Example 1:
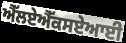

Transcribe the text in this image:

ਐੱਲਏਐੱਕਸਏਆਈ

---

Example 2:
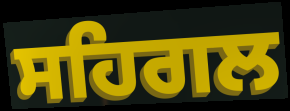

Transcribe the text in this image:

ਸਹਿਗਲ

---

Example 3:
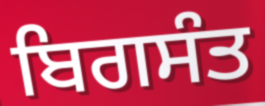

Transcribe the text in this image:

ਬਿਗਸੰਤ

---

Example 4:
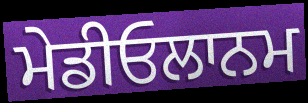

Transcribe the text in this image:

ਮੇਡੀਓਲਾਨਮ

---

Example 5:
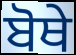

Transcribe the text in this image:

ਬੋਥੇ